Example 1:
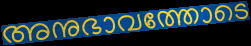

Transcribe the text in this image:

അനുഭാവത്തോടെ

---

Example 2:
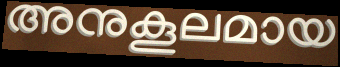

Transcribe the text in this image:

അനുകൂലമായ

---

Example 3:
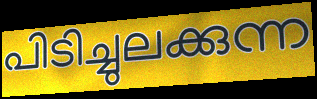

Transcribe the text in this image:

പിടിച്ചുലക്കുന്ന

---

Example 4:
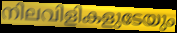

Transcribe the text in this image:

നിലവിളികളുടേയും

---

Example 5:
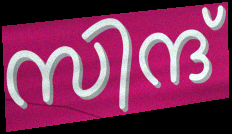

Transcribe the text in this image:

സിന്ദ്